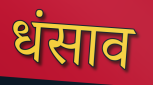
धंसाव